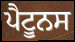
ਪੈਟੂਨਸ